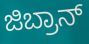
ಜಿಬ್ರಾನ್